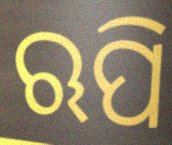
ଋପି